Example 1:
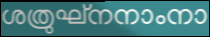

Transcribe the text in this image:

ശത്രുഘ്നനാംനാ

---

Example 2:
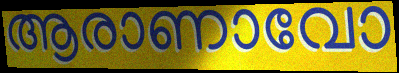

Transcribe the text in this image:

ആരാണാവോ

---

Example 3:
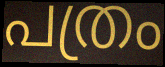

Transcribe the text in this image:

പത്രം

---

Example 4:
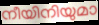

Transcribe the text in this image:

നീയിനിയുമാ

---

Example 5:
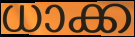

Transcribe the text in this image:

ധാക്ക